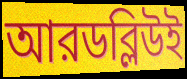
আরডব্লিউই